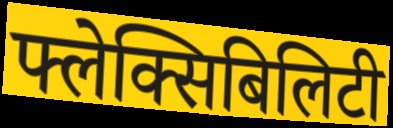
फ्लेक्सिबिलिटी